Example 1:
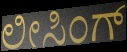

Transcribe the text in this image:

ಲೀಸಿಂಗ್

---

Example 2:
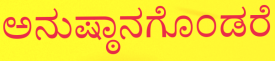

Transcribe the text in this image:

ಅನುಷ್ಠಾನಗೊಂಡರೆ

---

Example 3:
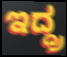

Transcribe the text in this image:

ಇದ್ದ್ರ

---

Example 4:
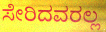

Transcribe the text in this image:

ಸೇರಿದವರಲ್ಲ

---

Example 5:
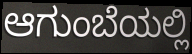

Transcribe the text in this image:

ಆಗುಂಬೆಯಲ್ಲಿ